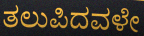
ತಲುಪಿದವಳೇ